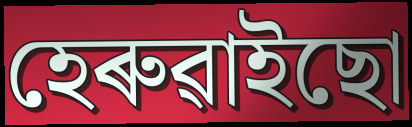
হেৰুৱাইছো